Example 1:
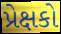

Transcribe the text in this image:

પ્રેક્ષકો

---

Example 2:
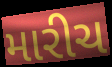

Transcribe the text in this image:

મારીચ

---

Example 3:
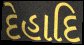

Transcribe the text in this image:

દેહાદિ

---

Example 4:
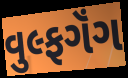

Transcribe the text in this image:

વુલ્ફગૅંગ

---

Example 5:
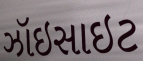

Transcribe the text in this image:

ઝૉઇસાઇટ